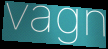
vagn